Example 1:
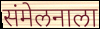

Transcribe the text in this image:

संमेलनाला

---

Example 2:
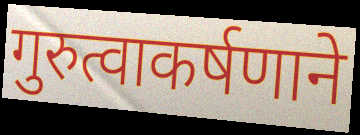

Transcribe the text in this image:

गुरुत्वाकर्षणाने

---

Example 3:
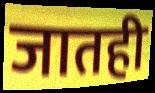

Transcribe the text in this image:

जातही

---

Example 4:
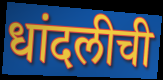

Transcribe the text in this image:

धांदलीची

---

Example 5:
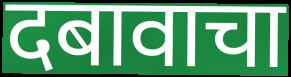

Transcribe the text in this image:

दबावाचा